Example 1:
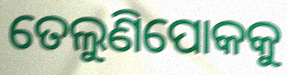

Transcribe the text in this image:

ତେଲୁଣିପୋକକୁ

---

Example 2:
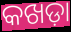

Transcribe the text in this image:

କଖଡ଼ା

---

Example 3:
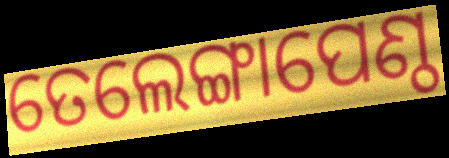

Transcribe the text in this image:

ତେଲେଙ୍ଗାପେଣ୍ଠ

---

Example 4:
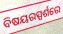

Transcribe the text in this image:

ବିଷୟରସ୍ପର୍ଶରେ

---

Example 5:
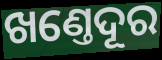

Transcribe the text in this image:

ଖଣ୍ତେଦୂର